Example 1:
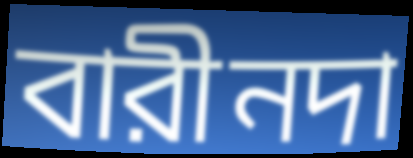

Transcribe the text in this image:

বারীনদা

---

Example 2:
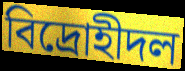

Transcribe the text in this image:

বিদ্রোহীদল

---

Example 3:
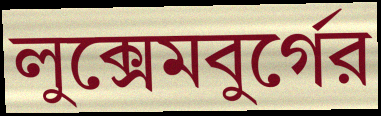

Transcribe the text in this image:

লুক্সেমবুর্গের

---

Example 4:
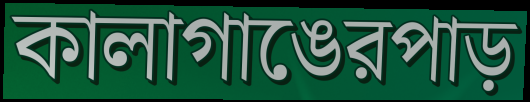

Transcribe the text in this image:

কালাগাঙেরপাড়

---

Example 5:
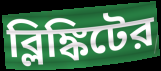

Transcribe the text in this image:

ব্লিঙ্কিটের